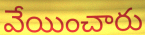
వేయించారు